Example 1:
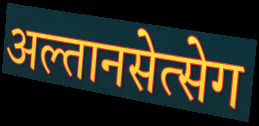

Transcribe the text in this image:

अल्तानसेत्सेग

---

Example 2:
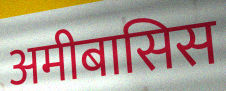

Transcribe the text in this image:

अमीबासिस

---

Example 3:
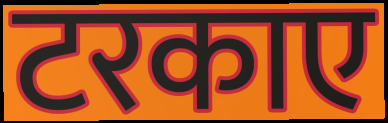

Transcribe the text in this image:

टरकाए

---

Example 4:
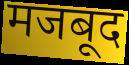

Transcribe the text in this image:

मजबूद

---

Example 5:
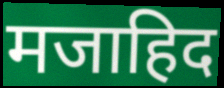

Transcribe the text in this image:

मजाहिद